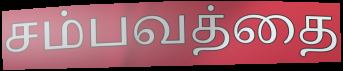
சம்பவத்தை